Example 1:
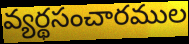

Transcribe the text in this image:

వ్యర్థసంచారముల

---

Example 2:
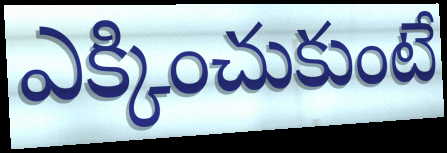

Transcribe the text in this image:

ఎక్కించుకుంటే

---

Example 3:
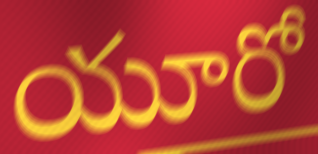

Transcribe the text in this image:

యూరో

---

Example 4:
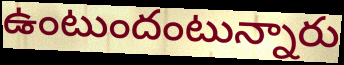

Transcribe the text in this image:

ఉంటుందంటున్నారు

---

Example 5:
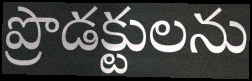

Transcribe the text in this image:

ప్రొడక్టులను